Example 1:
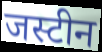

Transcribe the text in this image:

जस्टीन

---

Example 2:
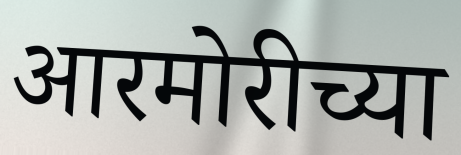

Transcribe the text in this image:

आरमोरीच्या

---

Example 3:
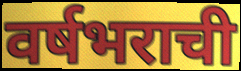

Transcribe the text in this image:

वर्षभराची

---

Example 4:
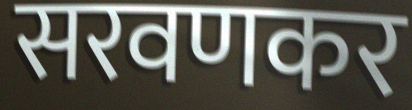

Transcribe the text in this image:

सरवणकर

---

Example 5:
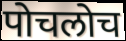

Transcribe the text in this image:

पोचलोच